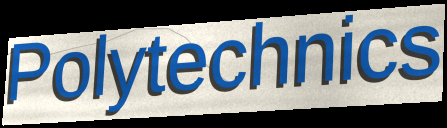
Polytechnics